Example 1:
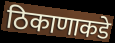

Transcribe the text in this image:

ठिकाणाकडे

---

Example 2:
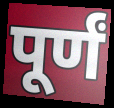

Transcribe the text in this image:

पूर्णं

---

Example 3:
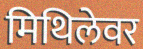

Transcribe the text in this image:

मिथिलेवर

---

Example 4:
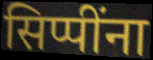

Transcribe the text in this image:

सिप्पींना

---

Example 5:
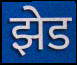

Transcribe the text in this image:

झेड